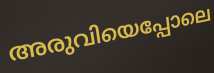
അരുവിയെപ്പോലെ